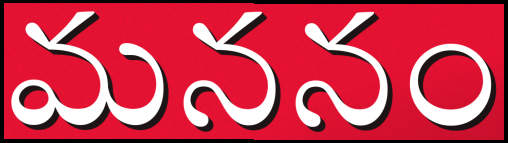
మననం